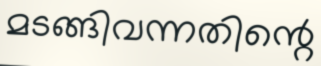
മടങ്ങിവന്നതിന്റെ